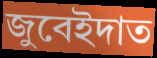
জুবেইদাত